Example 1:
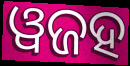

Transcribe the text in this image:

ୱଜହ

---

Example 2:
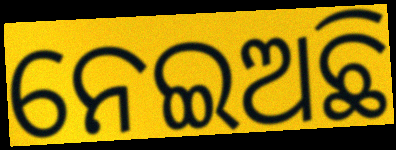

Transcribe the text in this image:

ନେଇଅଛି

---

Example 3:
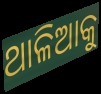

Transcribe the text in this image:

ଥାଳିଆକୁ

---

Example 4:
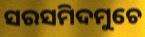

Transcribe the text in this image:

ସରସମିଦମୁଚେ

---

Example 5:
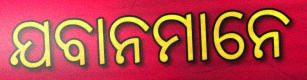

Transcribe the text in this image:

ଯବାନମାନେ